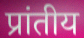
प्रांतीय